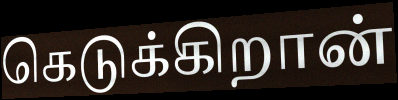
கெடுக்கிறான்